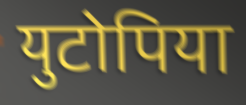
युटोपिया